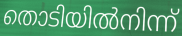
തൊടിയിൽനിന്ന്